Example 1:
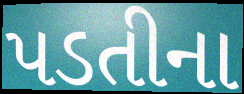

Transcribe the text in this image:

પડતીના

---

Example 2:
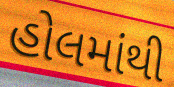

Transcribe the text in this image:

હોલમાંથી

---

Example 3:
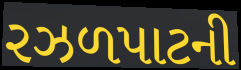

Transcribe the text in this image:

રઝળપાટની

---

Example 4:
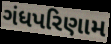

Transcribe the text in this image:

ગંધપરિણામ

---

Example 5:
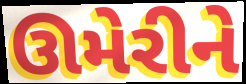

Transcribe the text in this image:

ઊમેરીને